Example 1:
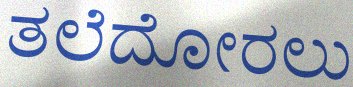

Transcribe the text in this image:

ತಲೆದೋರಲು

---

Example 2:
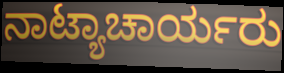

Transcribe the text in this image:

ನಾಟ್ಯಾಚಾರ್ಯರು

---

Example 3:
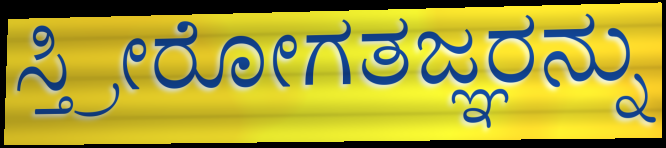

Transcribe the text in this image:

ಸ್ತ್ರೀರೋಗತಜ್ಞರನ್ನು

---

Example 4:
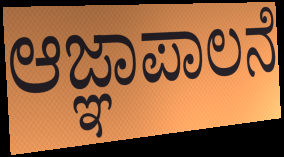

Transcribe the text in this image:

ಆಜ್ಞಾಪಾಲನೆ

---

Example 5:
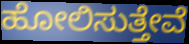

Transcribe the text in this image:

ಹೋಲಿಸುತ್ತೇವೆ